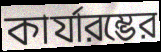
কার্যারম্ভের